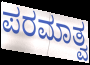
ಪರಮಾತ್ವ